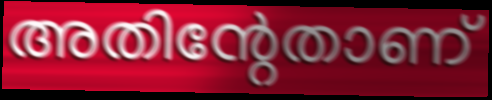
അതിന്റേതാണ്